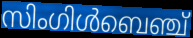
സിംഗിൾബെഞ്ച്